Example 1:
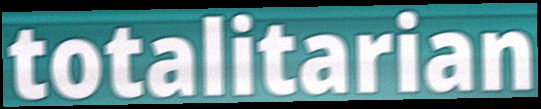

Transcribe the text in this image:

totalitarian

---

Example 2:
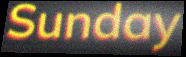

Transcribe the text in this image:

Sunday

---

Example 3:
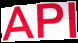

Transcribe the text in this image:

API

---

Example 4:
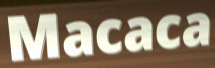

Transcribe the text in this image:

Macaca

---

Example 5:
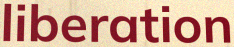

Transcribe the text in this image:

liberation